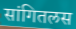
सांगितलस